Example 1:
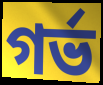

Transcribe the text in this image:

গৰ্ভ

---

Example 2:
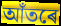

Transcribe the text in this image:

আঁতৰে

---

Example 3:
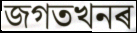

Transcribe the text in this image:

জগতখনৰ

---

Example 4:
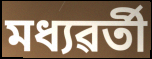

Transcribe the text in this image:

মধ্যৱৰ্তী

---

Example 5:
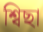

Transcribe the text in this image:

শ্বিছা